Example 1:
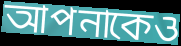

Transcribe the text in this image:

আপনাকেও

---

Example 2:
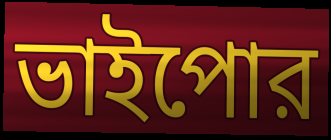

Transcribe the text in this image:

ভাইপোর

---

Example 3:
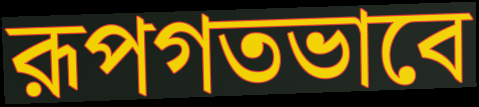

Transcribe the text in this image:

রূপগতভাবে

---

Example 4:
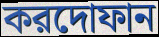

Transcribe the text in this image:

করদোফান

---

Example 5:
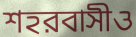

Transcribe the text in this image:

শহরবাসীও